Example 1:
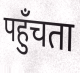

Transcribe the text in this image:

पहुँचता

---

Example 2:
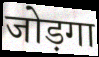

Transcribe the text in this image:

जोड़गा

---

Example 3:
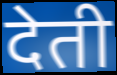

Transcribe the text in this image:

देती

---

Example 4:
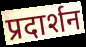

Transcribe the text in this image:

प्रदार्शन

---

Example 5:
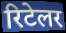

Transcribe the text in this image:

रिटेलर